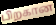
பிறகான